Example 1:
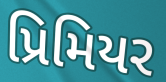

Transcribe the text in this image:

પ્રિમિયર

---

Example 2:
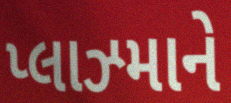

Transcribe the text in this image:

પ્લાઝ્માને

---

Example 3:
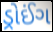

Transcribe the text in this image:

ડ્રોઈંગ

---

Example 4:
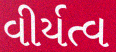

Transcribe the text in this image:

વીર્યત્વ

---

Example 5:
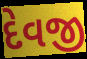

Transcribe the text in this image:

દેવજી